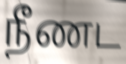
நீணட